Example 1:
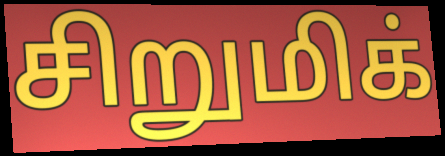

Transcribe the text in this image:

சிறுமிக்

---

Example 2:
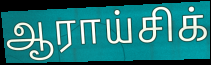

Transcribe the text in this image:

ஆராய்சிக்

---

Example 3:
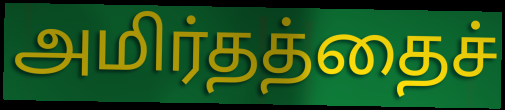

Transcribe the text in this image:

அமிர்தத்தைச்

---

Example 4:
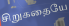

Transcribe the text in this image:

சிறுகதையே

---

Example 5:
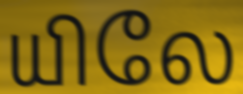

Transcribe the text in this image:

யிலே